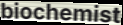
biochemist